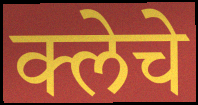
क्लेचे